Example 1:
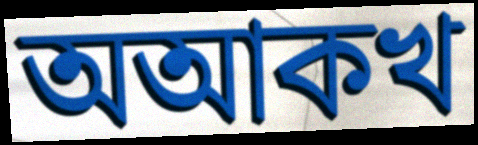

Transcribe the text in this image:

অআকখ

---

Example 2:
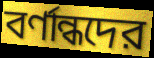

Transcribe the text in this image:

বর্ণান্ধদের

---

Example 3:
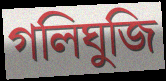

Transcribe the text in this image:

গলিঘুজি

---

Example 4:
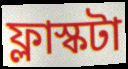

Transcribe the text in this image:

ফ্লাস্কটা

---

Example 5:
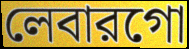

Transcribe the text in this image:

লেবারগো